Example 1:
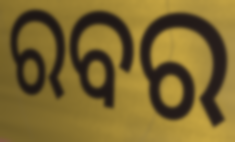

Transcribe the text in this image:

ରବର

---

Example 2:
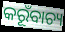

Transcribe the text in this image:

କରୂଁବାଚ୍ୟ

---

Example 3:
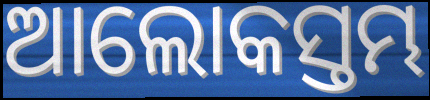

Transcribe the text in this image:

ଆଲୋକସ୍ତମ୍ଭ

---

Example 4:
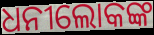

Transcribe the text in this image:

ଧନୀଲୋକଙ୍କ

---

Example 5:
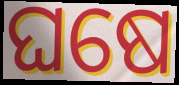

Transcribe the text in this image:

ଘଷେ